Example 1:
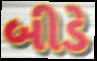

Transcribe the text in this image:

બીડે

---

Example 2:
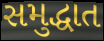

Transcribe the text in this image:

સમુદ્ધાત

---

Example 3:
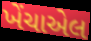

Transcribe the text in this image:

ખેંચાએલ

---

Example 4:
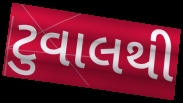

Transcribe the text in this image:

ટુવાલથી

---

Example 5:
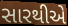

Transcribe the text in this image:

સારથીએ